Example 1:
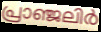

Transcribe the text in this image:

പ്രാഞ്ജലിർ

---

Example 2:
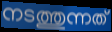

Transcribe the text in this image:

നടത്തുന്നത്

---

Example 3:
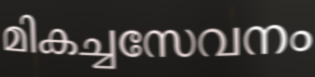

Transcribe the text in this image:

മികച്ചസേവനം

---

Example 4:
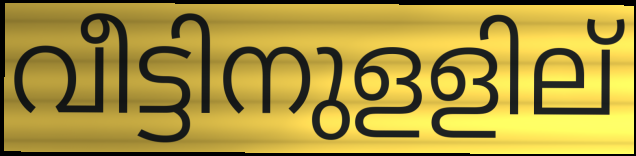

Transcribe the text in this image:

വീട്ടിനുളളില്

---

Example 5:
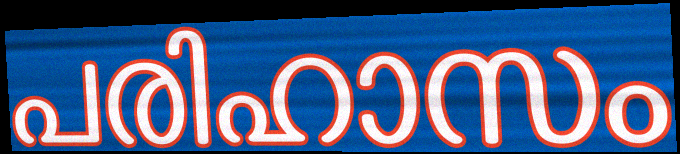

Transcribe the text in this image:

പരിഹാസം